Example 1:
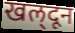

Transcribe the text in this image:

खल्दून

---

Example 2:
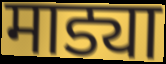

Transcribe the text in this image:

माड्या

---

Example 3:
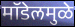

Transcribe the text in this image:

मॉडेलमुळे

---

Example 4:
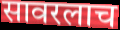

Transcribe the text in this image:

सावरलाच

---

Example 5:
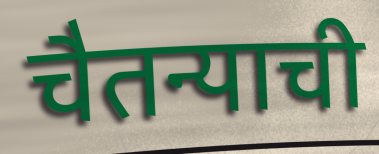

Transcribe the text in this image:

चैतन्याची